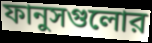
ফানুসগুলোর